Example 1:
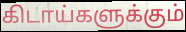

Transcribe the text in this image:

கிடாய்களுக்கும்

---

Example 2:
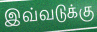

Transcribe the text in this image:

இவ்வடுக்கு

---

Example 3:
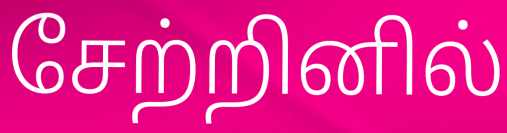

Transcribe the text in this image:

சேற்றினில்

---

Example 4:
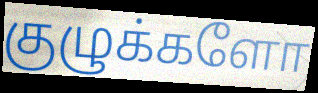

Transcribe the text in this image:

குழுக்களோ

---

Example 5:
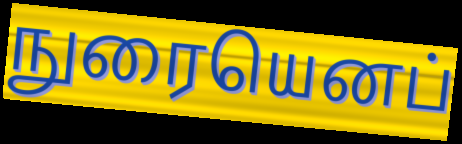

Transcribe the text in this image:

நுரையெனப்